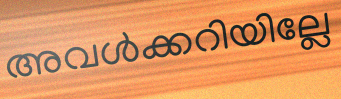
അവൾക്കറിയില്ലേ